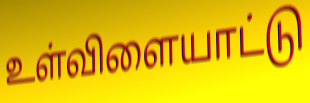
உள்விளையாட்டு